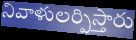
నివాళులర్పిస్తారు